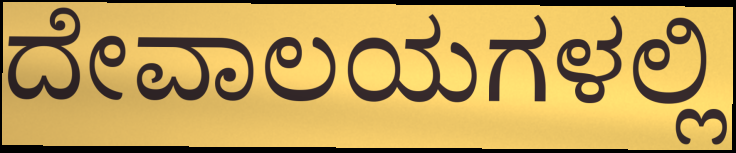
ದೇವಾಲಯಗಳಲ್ಲಿ